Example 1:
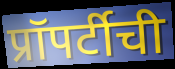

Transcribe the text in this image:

प्रॉपर्टीची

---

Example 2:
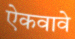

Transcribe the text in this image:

ऐकवावे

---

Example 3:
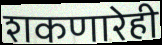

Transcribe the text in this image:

शकणारेही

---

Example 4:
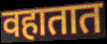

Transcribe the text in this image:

वहातात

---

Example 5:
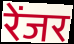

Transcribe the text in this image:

रेंजर